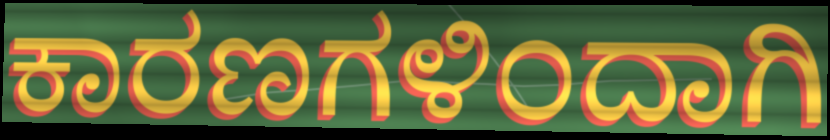
ಕಾರಣಗಳಿಂದಾಗಿ